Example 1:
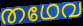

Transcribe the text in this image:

തഥേവ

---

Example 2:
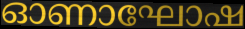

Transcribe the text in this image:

ഓണാഘോഷ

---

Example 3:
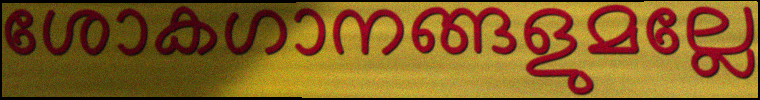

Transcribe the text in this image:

ശോകഗാനങ്ങളുമല്ലേ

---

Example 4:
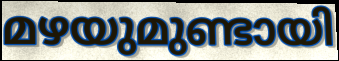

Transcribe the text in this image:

മഴയുമുണ്ടായി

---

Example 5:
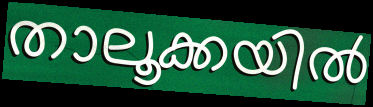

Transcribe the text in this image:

താലൂക്കയിൽ